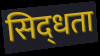
सिद्‌धता